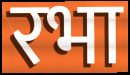
रभा